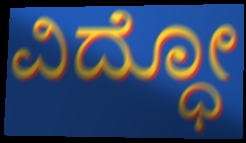
ವಿದ್ಧೋ